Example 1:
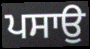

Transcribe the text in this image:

ਪਸਾਉ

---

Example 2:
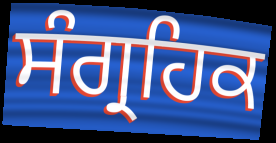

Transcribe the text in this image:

ਸੰਗ੍ਰਹਿਕ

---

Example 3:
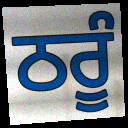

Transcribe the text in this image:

ਠਰੂੰ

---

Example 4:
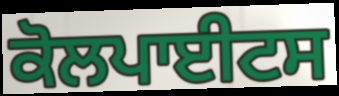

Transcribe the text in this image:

ਕੋਲਪਾਈਟਸ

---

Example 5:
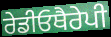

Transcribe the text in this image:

ਰੇਡੀਓਥੈਰੇਪੀ